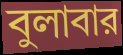
বুলাবার